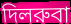
দিলরুবা